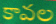
కావల